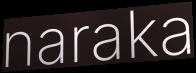
naraka